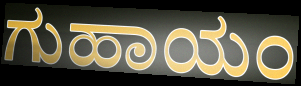
ಗುಹಾಯಂ